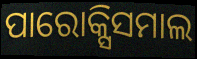
ପାରୋକ୍ସିସମାଲ